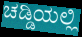
ಚಡ್ಡಿಯಲ್ಲಿ